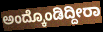
ಅಂದ್ಕೊಂಡಿದ್ದೀರಾ